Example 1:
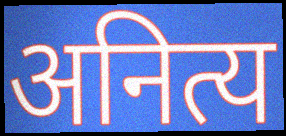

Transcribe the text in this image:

अनित्य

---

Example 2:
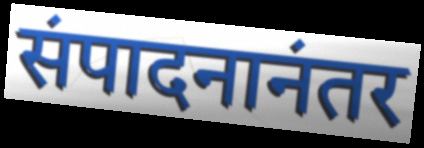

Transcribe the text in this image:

संपादनानंतर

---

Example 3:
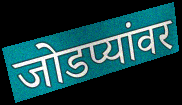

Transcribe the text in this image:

जोडप्यांवर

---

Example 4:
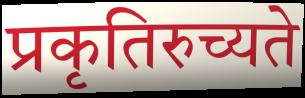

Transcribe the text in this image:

प्रकृतिरुच्यते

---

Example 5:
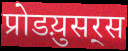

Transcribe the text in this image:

प्रोडय़ुसर्स